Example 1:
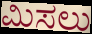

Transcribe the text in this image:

ಮಿಸಲು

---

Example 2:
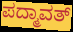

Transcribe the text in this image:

ಪದ್ಮಾವತ್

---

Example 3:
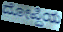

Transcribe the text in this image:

ದೋಪ್ದಿಯ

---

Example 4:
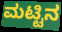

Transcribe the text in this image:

ಮಟ್ಟಿನ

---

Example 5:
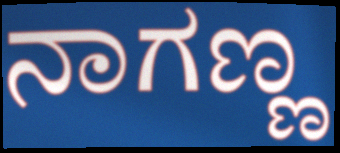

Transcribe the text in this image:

ನಾಗಣ್ಣ